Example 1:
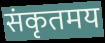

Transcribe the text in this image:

संकृतमय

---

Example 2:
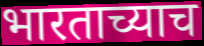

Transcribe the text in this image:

भारताच्याच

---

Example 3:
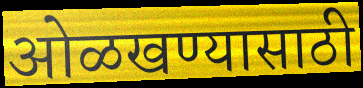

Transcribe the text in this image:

ओळखण्यासाठी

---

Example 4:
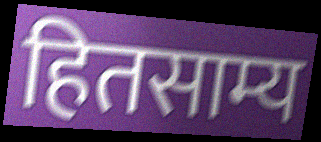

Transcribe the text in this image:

हितसाम्य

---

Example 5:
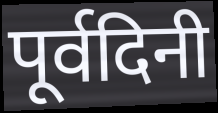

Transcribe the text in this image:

पूर्वदिनी